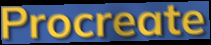
Procreate